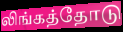
லிங்கத்தோடு